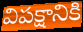
విపక్షానికి